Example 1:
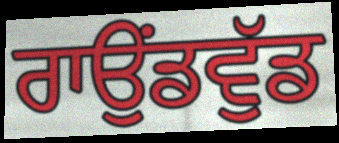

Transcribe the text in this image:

ਰਾਉਂਡਵੁੱਡ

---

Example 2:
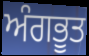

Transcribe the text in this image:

ਅੰਗਭੂਤ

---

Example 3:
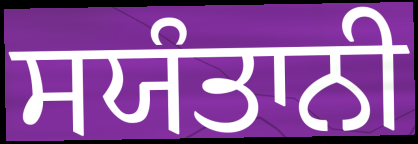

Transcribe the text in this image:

ਸਯੰਤਾਨੀ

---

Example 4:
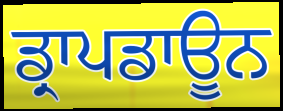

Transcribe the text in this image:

ਡ੍ਰਾਪਡਾਊਨ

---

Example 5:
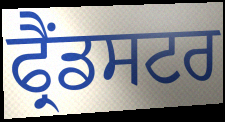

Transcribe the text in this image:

ਫ੍ਰੈਂਡਸਟਰ